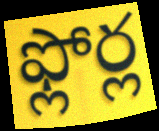
ఫ్లోర్ల